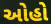
ઓહો